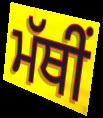
ਮੱਥੀਂ